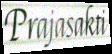
Prajasakti